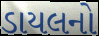
ડાયલનો